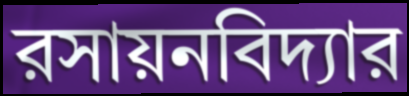
রসায়নবিদ্যার